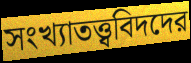
সংখ্যাতত্ত্ববিদদের